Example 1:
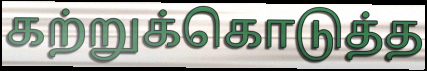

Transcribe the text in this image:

கற்றுக்கொடுத்த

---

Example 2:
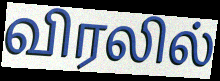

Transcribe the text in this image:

விரலில்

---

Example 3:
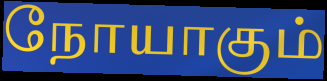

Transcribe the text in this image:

நோயாகும்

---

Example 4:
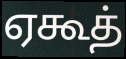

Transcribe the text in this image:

ஏகூத்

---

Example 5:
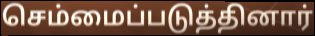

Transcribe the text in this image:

செம்மைப்படுத்தினார்